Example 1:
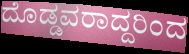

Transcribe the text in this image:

ದೊಡ್ಡವರಾದ್ದರಿಂದ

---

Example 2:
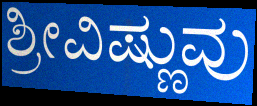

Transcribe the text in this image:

ಶ್ರೀವಿಷ್ಣುವು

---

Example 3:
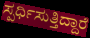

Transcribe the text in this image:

ಸ್ಪರ್ಧಿಸುತ್ತಿದ್ದಾರೆ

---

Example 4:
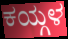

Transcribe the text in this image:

ಕಯ್ಗಳ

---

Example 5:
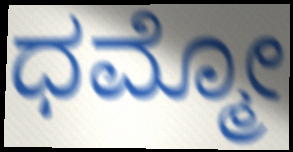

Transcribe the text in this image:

ಧಮ್ಮೋ